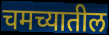
चमच्यातील